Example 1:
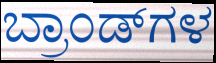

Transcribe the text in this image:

ಬ್ರಾಂಡ್‌ಗಳ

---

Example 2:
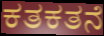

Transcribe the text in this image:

ಕತಕತನೆ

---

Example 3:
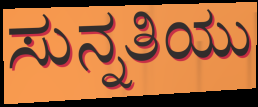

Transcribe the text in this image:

ಸುನ್ನತಿಯು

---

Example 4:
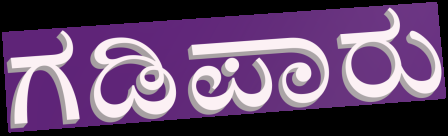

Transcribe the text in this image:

ಗಡಿಪಾರು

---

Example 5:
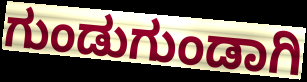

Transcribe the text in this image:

ಗುಂಡುಗುಂಡಾಗಿ